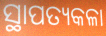
ସ୍ଥାପତ୍ୟକଳା